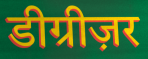
डीग्रीज़र